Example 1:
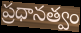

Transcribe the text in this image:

ప్రధానత్వం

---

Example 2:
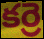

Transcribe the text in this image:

కర్రె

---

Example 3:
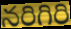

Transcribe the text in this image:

నరిగిరి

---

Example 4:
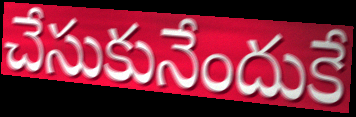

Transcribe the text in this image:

చేసుకునేందుకే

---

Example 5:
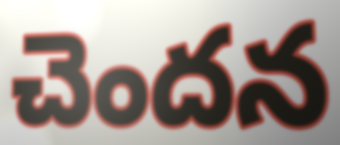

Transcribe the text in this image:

చెందన